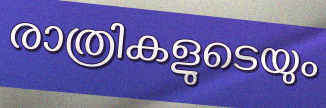
രാത്രികളുടെയും